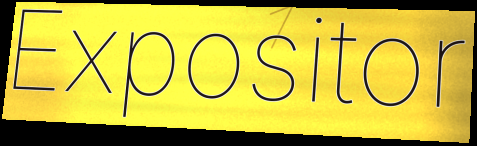
Expositor